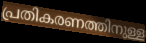
പ്രതികരണത്തിനുള്ള